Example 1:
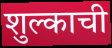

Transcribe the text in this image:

शुल्काची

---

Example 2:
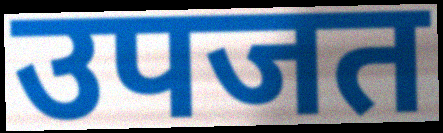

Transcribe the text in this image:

उपजत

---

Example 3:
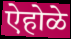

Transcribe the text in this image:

ऐहोळे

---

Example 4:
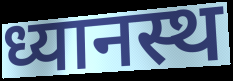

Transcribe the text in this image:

ध्यानस्थ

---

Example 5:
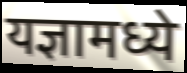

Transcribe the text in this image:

यज्ञामध्ये